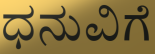
ಧನುವಿಗೆ